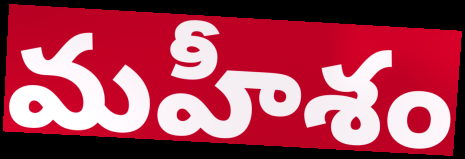
మహీశం